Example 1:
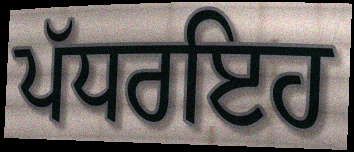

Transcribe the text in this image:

ਪੱਧਰਇਹ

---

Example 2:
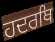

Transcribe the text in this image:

ਹਦਰਥਿ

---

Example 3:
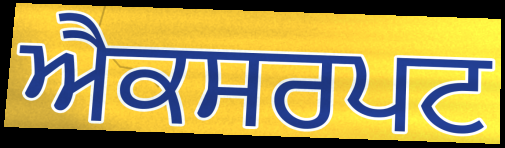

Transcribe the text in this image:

ਐਕਸਰਪਟ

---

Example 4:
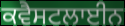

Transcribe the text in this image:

ਕਵੈਸਟਲਾਈਨ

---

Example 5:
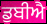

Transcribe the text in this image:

ਡੁਬੀਐ